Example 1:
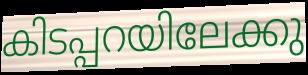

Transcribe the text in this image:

കിടപ്പറയിലേക്കു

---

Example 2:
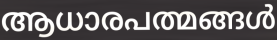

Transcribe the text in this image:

ആധാരപത്മങ്ങൾ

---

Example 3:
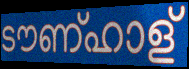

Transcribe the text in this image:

ടൗണ്ഹാള്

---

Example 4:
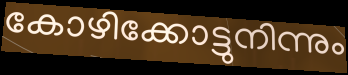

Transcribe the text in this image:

കോഴിക്കോട്ടുനിന്നും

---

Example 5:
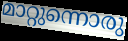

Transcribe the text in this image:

മാറ്റുന്നൊരു